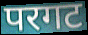
परगट